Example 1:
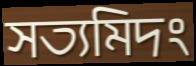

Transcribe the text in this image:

সত্যমিদং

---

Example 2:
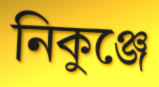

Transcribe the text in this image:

নিকুঞ্জে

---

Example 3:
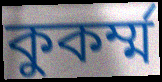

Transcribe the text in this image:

কুকর্ম্ম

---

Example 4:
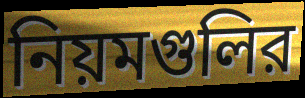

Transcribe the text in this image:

নিয়মগুলির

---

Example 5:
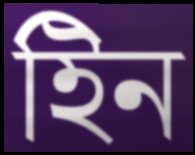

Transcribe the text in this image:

ইিন